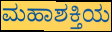
ಮಹಾಶಕ್ತಿಯ